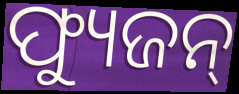
ଫ୍ୟୁଜନ୍